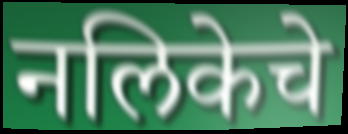
नलिकेचे